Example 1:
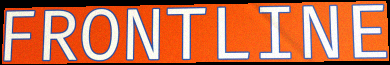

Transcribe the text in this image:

FRONTLINE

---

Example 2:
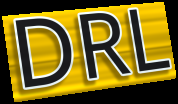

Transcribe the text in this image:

DRL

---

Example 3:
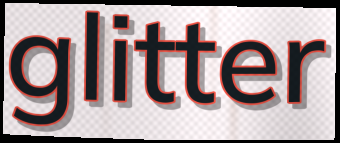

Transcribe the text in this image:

glitter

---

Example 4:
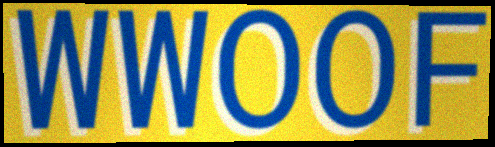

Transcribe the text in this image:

WWOOF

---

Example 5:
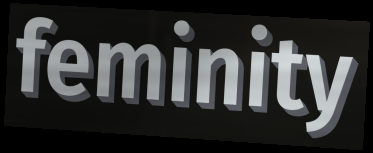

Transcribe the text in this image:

feminity